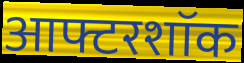
आफ्टरशॉक